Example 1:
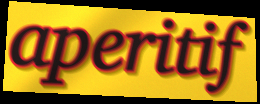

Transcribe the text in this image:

aperitif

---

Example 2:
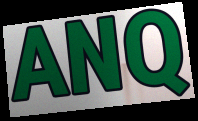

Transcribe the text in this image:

ANQ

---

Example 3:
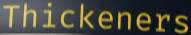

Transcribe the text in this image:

Thickeners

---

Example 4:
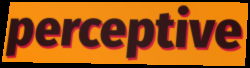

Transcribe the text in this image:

perceptive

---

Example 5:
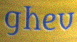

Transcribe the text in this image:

gheu